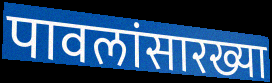
पावलांसारख्या